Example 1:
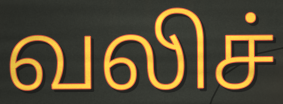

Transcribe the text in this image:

வலிச்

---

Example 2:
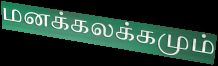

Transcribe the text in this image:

மனக்கலக்கமும்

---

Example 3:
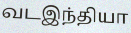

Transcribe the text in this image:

வடஇந்தியா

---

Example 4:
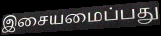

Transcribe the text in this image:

இசையமைப்பது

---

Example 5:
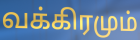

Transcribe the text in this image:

வக்கிரமும்